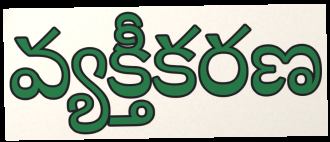
వ్యక్తీకరణ